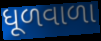
ધૂળવાળા